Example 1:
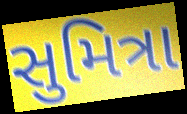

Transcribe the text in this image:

સુમિત્રા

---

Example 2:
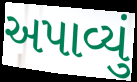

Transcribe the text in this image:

અપાવ્યું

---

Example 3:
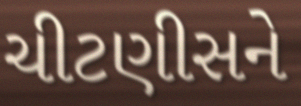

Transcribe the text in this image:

ચીટણીસને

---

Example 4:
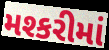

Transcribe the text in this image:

મશ્કરીમાં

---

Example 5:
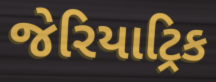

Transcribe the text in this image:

જેરિયાટ્રિક